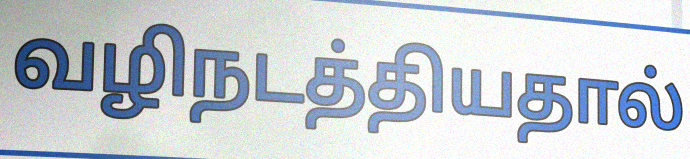
வழிநடத்தியதால்